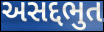
અસદ્દભુત